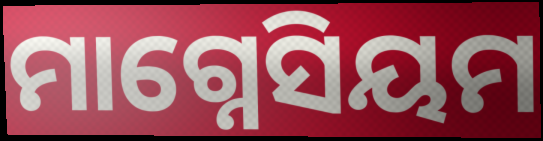
ମାଗ୍ନେସିୟମ